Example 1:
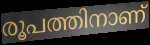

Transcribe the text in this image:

രൂപത്തിനാണ്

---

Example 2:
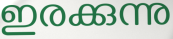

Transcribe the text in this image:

ഇരക്കുന്നു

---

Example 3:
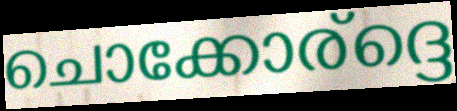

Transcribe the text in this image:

ചൊക്കോര്ദ്ദെ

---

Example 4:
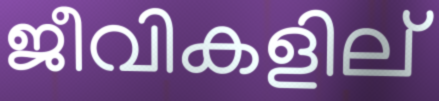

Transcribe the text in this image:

ജീവികളില്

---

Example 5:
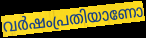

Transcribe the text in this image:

വർഷംപ്രതിയാണോ